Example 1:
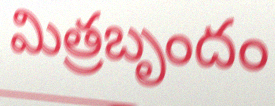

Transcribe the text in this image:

మిత్రబృందం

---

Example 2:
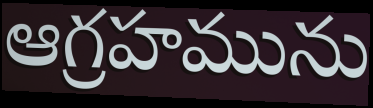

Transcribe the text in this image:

ఆగ్రహమును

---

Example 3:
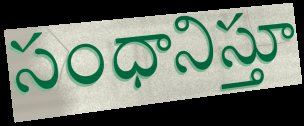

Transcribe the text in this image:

సంధానిస్తూ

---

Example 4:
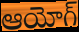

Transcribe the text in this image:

ఆయోగ్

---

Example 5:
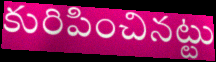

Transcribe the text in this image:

కురిపించినట్టు